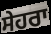
ਸੇਹਰਾ